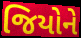
જિયોને